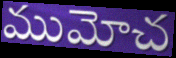
ముమోచ